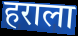
हराला